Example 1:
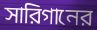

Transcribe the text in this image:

সারিগানের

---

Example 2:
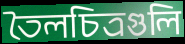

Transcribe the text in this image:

তৈলচিত্রগুলি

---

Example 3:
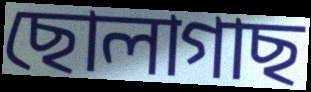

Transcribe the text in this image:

ছোলাগাছ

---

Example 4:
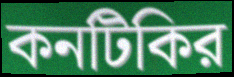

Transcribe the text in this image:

কনটিকির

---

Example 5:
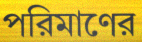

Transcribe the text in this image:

পরিমাণের